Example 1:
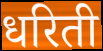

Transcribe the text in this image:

धरिती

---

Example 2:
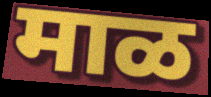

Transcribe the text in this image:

माळ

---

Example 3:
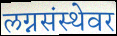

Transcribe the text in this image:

लग्नसंस्थेवर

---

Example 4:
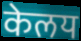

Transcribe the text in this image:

केलय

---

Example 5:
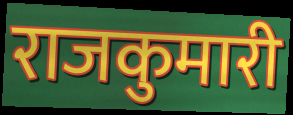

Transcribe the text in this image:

राजकुमारी